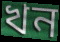
খন